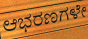
ಆಭರಣಗಳೇ